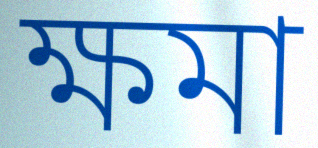
ক্ষমা